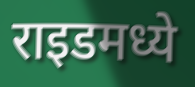
राइडमध्ये